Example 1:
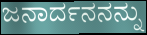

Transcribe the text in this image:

ಜನಾರ್ದನನನ್ನು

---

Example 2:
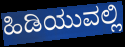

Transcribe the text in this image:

ಹಿಡಿಯುವಲ್ಲಿ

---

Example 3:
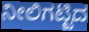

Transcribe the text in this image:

ನೀಲಿಗಟ್ಟಿದ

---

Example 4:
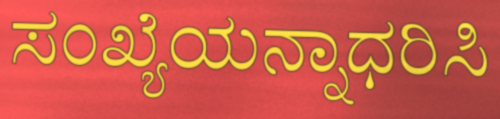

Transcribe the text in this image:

ಸಂಖ್ಯೆಯನ್ನಾಧರಿಸಿ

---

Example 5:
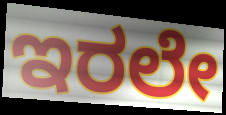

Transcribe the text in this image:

ಇರಲೇ